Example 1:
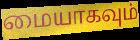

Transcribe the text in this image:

மையாகவும்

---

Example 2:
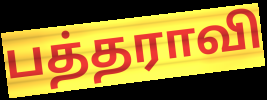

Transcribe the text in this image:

பத்தராவி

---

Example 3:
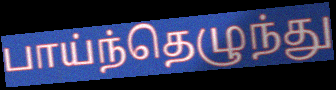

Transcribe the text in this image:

பாய்ந்தெழுந்து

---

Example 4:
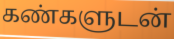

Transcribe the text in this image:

கண்களுடன்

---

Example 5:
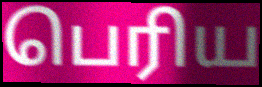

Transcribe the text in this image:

பெரிய